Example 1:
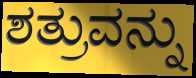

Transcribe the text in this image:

ಶತ್ರುವನ್ನು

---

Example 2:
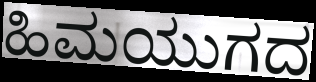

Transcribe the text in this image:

ಹಿಮಯುಗದ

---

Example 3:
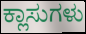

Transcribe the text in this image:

ಕ್ಲಾಸುಗಳು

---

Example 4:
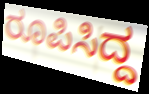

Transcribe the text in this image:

ರೂಪಿಸಿದ್ದ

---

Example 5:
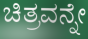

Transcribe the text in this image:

ಚಿತ್ರವನ್ನೇ